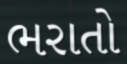
ભરાતો